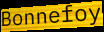
Bonnefoy